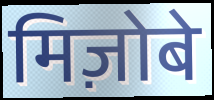
मिज़ोबे